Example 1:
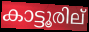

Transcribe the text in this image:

കാട്ടൂരില്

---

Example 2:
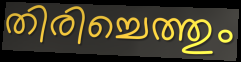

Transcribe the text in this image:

തിരിച്ചെത്തും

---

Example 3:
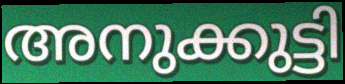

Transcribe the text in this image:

അനുക്കുട്ടി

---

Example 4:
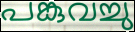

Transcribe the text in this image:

പങ്കുവച്ചു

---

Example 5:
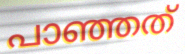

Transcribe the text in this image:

പാഞ്ഞത്